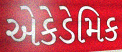
એકેડેમિક